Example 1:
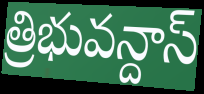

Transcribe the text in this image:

త్రిభువన్దాస్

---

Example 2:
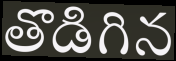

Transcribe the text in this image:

తొడిగిన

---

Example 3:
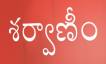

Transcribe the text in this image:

శర్వాణీం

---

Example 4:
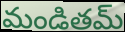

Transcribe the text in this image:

మండితమ్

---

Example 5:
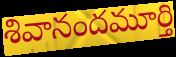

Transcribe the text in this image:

శివానందమూర్తి